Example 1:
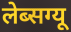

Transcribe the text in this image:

लेब्सग्यू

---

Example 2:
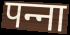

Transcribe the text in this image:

पन्‍ना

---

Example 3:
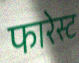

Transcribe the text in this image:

फारेस्‍ट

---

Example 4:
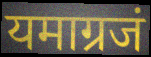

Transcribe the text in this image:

यमाग्रजं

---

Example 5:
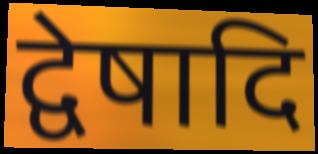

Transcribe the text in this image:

द्वेषादि